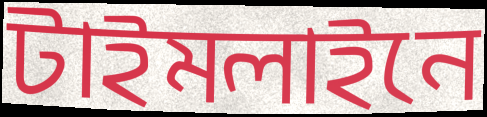
টাইমলাইনে